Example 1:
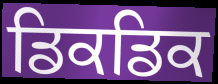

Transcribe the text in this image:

ਡਿਕਡਿਕ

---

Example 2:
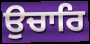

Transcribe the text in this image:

ਉਚਾਰਿ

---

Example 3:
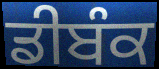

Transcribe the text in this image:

ਡੀਬੰਕ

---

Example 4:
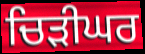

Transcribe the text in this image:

ਚਿੜੀਘਰ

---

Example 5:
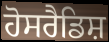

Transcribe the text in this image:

ਹੋਸਰੈਡਿਸ਼